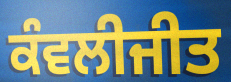
ਕੰਵਲੀਜੀਤ